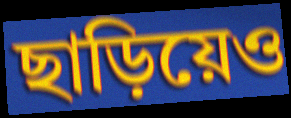
ছাড়িয়েও